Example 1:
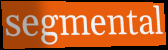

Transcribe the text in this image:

segmental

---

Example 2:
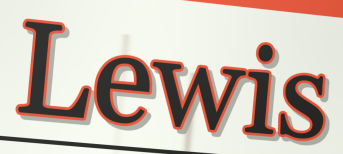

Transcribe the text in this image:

Lewis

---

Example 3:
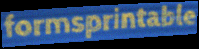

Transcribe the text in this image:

formsprintable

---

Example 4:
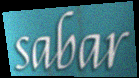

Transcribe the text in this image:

sabar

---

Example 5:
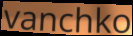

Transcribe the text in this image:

vanchko